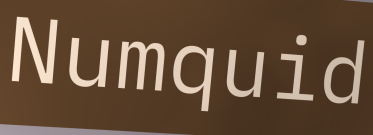
Numquid